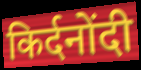
किर्दनोंदी